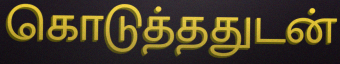
கொடுத்ததுடன்